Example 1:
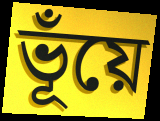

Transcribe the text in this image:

ভূঁয়ে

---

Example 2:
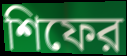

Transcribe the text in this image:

শিফের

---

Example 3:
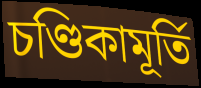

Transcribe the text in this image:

চণ্ডিকামূর্তি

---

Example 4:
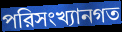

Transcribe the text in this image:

পরিসংখ্যানগত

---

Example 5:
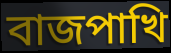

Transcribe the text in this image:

বাজপাখি